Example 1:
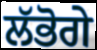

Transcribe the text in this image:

ਲੱਭੋਗੇ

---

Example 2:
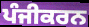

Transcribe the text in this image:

ਪੰਜੀਕਰਨ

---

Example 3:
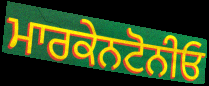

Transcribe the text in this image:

ਮਾਰਕੇਨਟੋਨੀਓ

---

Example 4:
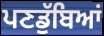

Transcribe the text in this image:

ਪਣਡੁੱਬਿਆਂ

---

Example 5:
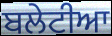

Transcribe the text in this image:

ਬਲੇਟੀਆ